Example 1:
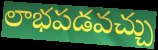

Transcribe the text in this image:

లాభపడవచ్చు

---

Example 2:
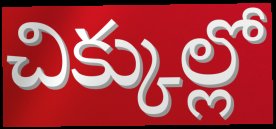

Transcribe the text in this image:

చిక్కుల్లో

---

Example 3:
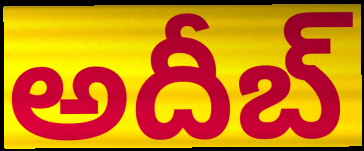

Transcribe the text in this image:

అదీబ్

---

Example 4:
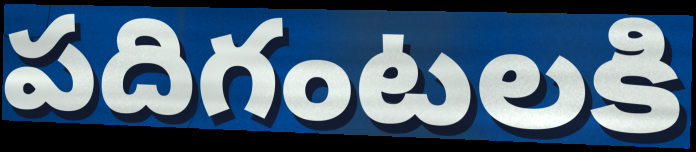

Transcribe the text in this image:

పదిగంటలకి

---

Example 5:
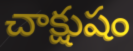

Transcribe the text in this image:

చాక్షుషం